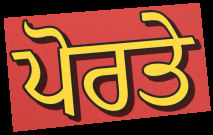
ਪੋਰਤੇ